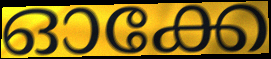
ഓക്കേ